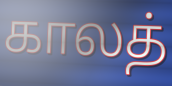
காலத்